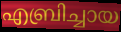
എബ്രിച്ചായ